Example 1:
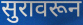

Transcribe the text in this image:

सुरावरून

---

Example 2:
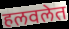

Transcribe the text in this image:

हलवलेत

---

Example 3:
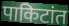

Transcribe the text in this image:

पाकिटांत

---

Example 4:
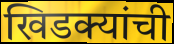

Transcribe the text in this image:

खिडक्यांची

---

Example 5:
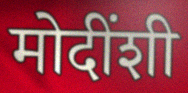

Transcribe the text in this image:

मोदींशी